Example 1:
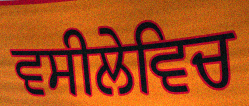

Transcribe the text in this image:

ਵਸੀਲੇਵਿਚ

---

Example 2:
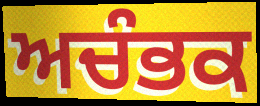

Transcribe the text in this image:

ਅਚੰਭਕ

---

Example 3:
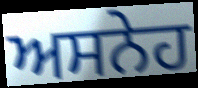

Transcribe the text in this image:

ਅਸਨੇਹ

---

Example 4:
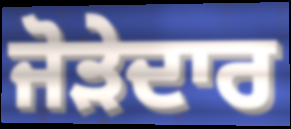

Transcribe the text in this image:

ਜੋੜੇਦਾਰ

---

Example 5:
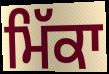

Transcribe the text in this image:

ਮਿੱਕਾ